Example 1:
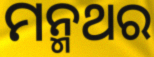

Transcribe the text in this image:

ମନ୍ମଥର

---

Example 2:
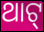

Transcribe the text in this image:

ଥାଟ୍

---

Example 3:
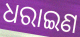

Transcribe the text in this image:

ଧରାଇଣ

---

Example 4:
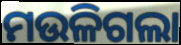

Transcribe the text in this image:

ମଉଳିଗଲା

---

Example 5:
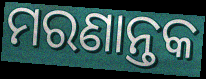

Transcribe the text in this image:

ମରଣାନ୍ତକ